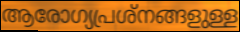
ആരോഗ്യപ്രശ്നങ്ങളുള്ള